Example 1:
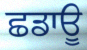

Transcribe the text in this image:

ਛਡਾਊ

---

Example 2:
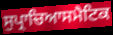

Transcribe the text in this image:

ਸੁਪ੍ਰਾਚਿਆਸਮੈਟਿਕ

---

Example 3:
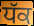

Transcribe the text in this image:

ਧੱਕ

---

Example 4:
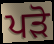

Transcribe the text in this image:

ਪੜੋ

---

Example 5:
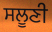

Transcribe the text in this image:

ਸਲੂਣੀ